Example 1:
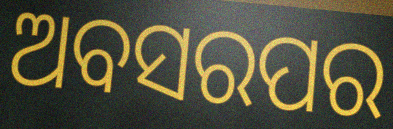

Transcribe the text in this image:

ଅବସରପର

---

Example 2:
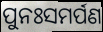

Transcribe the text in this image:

ପୁନଃସମର୍ପଣ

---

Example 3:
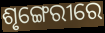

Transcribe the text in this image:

ଶୃଙ୍ଗେରୀରେ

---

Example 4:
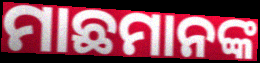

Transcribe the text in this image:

ମାଛମାନଙ୍କ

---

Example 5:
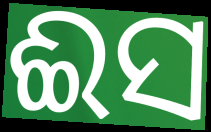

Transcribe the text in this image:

ଈସ